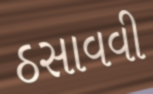
ઠસાવવી